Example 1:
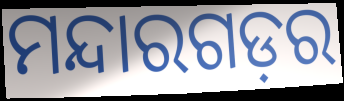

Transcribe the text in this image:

ମନ୍ଦାରଗଡ଼ର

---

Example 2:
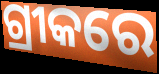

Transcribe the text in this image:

ଗ୍ରୀକରେ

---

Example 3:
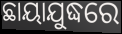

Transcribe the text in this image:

ଛାୟାଯୁଦ୍ଧରେ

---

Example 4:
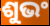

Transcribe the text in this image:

ଶୁଭଂ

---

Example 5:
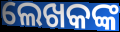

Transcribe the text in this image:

ଲେଖକଙ୍କ